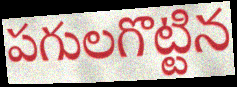
పగులగొట్టిన